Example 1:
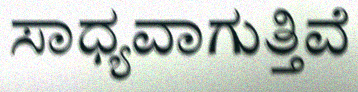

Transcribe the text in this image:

ಸಾಧ್ಯವಾಗುತ್ತಿವೆ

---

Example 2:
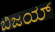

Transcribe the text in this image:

ಬಿಜಯ್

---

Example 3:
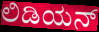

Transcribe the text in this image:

ಲಿಡಿಯನ್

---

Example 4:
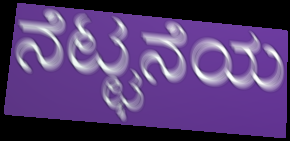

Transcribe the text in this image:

ನೆಟ್ಟನೆಯ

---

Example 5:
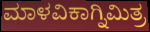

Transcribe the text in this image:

ಮಾಳವಿಕಾಗ್ನಿಮಿತ್ರ